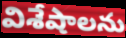
విశేషాలను